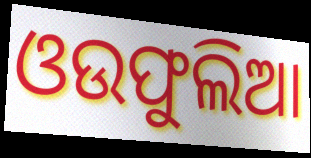
ଓଉଫୁଲିଆ